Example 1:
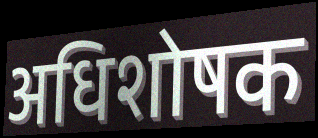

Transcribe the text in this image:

अधिशोषक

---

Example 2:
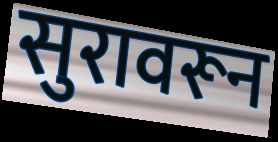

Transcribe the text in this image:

सुरावरून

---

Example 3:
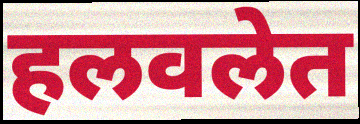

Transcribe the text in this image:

हलवलेत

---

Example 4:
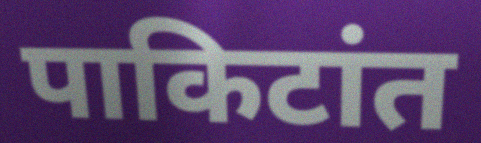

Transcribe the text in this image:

पाकिटांत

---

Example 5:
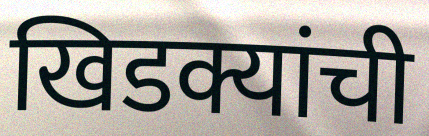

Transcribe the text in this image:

खिडक्यांची